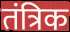
तंत्रिक